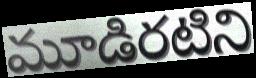
మూడిరటిని